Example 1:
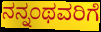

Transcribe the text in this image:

ನನ್ನಂಥವರಿಗೆ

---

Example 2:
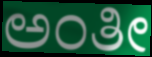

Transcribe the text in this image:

ಅಂತೀ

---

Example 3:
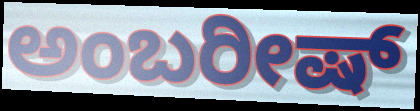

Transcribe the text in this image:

ಅಂಬರೀಷ್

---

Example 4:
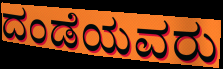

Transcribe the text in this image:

ದಂಡೆಯವರು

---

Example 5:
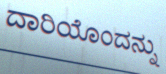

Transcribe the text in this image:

ದಾರಿಯೊಂದನ್ನು